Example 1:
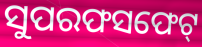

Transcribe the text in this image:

ସୁପରଫସଫେଟ୍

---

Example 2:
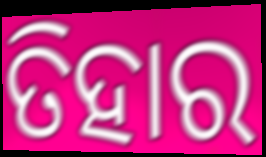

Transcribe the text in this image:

ତିହାର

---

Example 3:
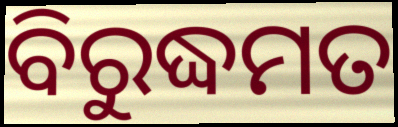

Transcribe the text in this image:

ବିରୁଦ୍ଧମତ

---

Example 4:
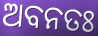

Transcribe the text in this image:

ଅବନତଃ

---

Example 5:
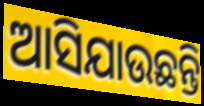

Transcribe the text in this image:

ଆସିଯାଉଛନ୍ତି